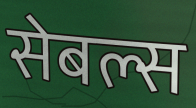
सेबल्स